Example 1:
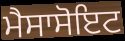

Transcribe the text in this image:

ਮੈਸਾਸੋਇਟ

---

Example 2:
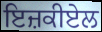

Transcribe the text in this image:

ਇਜ਼ਕੀਏਲ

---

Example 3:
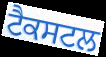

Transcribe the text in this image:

ਟੈਕਸਟਲ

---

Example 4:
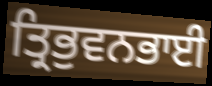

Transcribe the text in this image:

ਤ੍ਰਿਭੁਵਨਭਾਈ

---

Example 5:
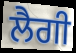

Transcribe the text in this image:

ਲੈਗੀ